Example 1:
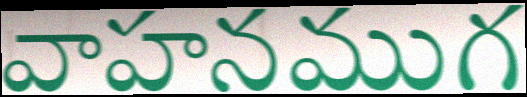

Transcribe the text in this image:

వాహనముగ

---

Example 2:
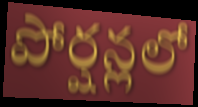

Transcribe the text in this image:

పోర్షన్లలో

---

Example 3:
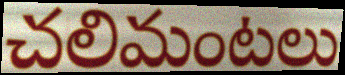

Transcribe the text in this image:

చలిమంటలు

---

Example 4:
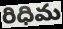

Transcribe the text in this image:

రిధిమ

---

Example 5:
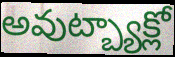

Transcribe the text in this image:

అవుట్బ్యాక్లో